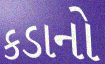
કડાનો